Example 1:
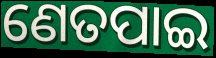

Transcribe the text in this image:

ଣେତପାଇ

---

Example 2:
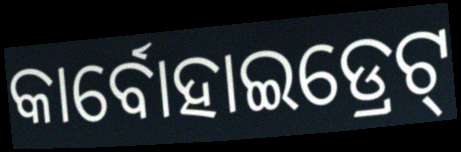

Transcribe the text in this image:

କାର୍ବୋହାଇଡ୍ରେଟ୍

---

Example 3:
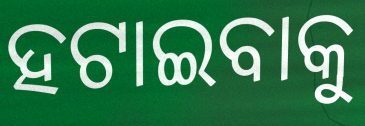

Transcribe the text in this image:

ହଟାଇବାକୁ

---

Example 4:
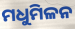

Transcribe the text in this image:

ମଧୁମିଳନ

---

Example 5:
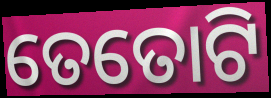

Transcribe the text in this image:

ତେତୋଟି